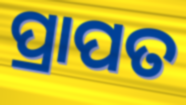
ପ୍ରାପତ